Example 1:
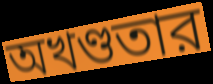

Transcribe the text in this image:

অখণ্ডতার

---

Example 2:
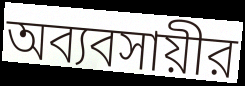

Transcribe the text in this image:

অব্যবসায়ীর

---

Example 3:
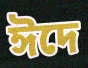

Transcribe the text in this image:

ঈদে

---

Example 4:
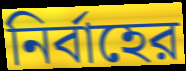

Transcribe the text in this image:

নির্বাহের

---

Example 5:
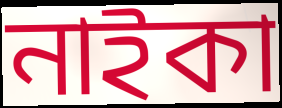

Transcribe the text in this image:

নাইকা